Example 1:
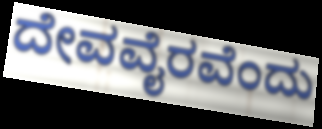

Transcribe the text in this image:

ದೇವವೈರವೆಂದು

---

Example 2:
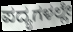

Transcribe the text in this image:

ಪದ್ಯಗಳಲ್ಲೇ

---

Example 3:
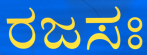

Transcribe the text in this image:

ರಜಸಃ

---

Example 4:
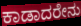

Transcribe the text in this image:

ಕಾಡಾದರೇನು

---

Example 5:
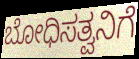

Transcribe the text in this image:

ಬೋಧಿಸತ್ವನಿಗೆ